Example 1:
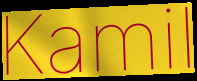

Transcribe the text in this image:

Kamil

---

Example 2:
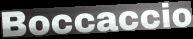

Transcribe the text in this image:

Boccaccio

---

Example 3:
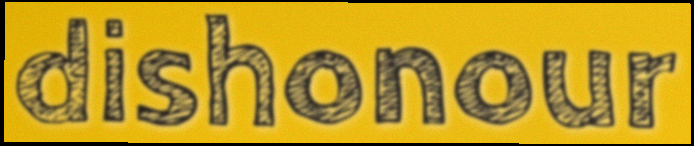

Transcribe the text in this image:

dishonour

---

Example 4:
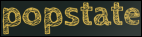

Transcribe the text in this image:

popstate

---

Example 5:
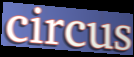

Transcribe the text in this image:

circus